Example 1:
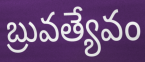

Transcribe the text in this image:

బ్రువత్యేవం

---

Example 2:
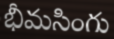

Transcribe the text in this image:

భీమసింగు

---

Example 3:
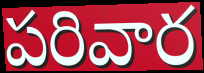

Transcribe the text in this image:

పరివార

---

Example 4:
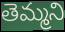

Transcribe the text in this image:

తెమ్మని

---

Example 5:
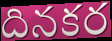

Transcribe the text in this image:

దినకర